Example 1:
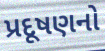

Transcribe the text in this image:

પ્રદૂષણનો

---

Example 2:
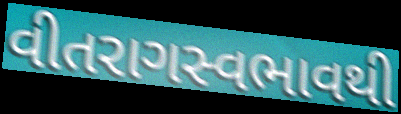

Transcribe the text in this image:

વીતરાગસ્વભાવથી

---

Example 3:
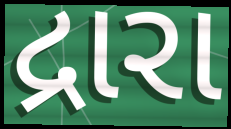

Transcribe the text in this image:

દ્રારા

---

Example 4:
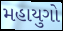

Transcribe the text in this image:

મહાયુગો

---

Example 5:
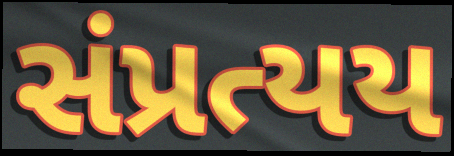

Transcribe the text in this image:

સંપ્રત્યય